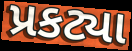
પ્રકટ્યા